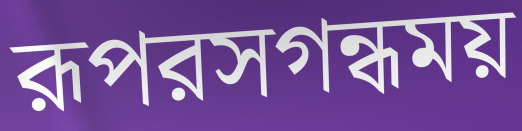
রূপরসগন্ধময়